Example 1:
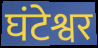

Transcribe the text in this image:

घंटेश्वर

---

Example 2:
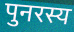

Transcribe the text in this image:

पुनरस्य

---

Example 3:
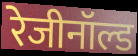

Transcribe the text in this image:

रेजीनॉल्ड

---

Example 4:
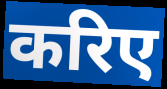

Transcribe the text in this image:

करिए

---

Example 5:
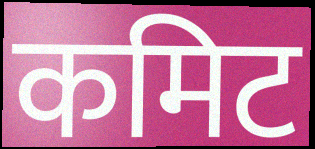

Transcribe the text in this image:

कमिट